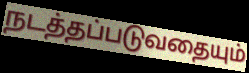
நடத்தப்படுவதையும்